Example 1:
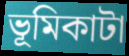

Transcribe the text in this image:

ভূমিকাটা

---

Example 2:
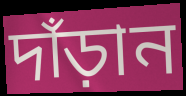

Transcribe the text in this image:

দাঁড়ান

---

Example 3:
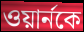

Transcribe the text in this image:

ওয়ার্নকে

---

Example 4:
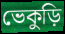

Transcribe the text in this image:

ভেকুড়ি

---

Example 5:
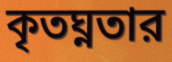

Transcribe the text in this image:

কৃতঘ্নতার